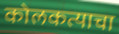
कोलकत्याचा